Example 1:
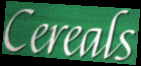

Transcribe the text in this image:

Cereals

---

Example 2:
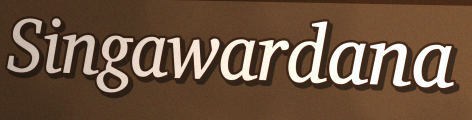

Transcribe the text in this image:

Singawardana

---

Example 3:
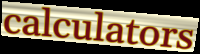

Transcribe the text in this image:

calculators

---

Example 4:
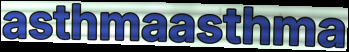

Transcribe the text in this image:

asthmaasthma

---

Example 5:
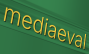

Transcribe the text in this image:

mediaeval